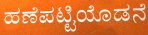
ಹಣೆಪಟ್ಟಿಯೊಡನೆ